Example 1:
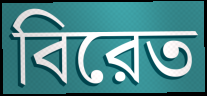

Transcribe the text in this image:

বিরেত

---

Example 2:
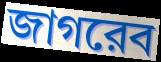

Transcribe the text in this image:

জাগরেব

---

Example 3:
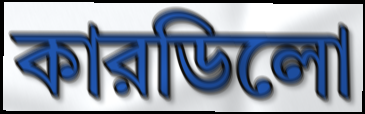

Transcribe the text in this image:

কারডিলো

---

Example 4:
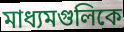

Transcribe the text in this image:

মাধ্যমগুলিকে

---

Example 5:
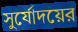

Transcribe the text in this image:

সুর্যোদয়ের